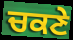
ਚਕਣੇ